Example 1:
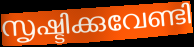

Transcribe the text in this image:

സൃഷ്ടിക്കുവേണ്ടി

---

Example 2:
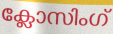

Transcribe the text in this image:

ക്ലോസിംഗ്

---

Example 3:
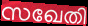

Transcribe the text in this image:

സഖേതി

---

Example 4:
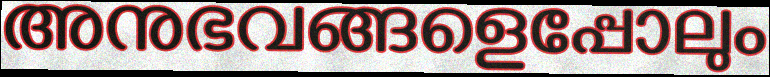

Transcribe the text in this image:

അനുഭവങ്ങളെപ്പോലും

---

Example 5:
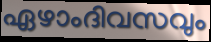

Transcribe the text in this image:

ഏഴാംദിവസവും